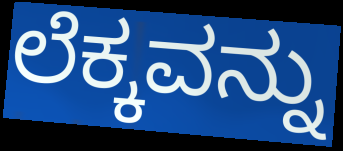
ಲೆಕ್ಕವನ್ನು